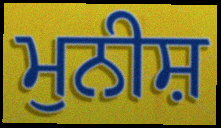
ਮੁਨੀਸ਼